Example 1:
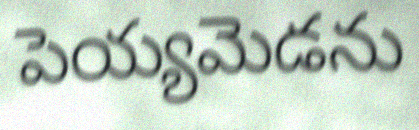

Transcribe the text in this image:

పెయ్యమెడను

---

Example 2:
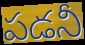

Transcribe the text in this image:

పడనీ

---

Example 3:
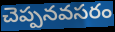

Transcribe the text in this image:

చెప్పనవసరం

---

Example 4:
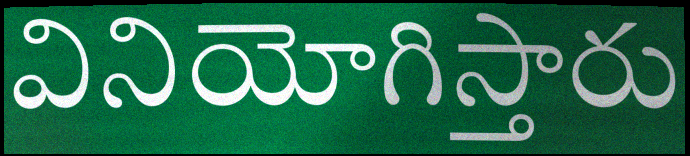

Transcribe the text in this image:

వినియోగిస్తారు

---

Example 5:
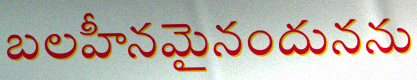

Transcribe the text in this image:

బలహీనమైనందునను